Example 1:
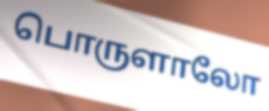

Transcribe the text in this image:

பொருளாலோ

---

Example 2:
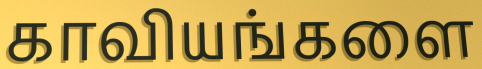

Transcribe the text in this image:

காவியங்களை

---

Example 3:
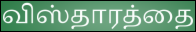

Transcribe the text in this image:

விஸ்தாரத்தை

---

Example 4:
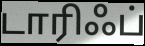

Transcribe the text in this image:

டாரிஃப்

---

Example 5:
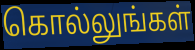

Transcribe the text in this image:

கொல்லுங்கள்